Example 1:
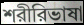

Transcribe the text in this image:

শরীরিভাষা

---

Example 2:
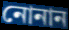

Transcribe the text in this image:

নোনান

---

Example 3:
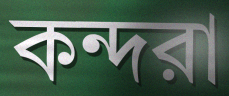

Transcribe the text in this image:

কন্দরা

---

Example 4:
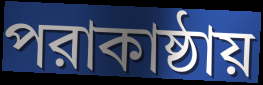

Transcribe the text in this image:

পরাকাষ্ঠায়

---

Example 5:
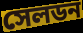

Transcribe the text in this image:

সেলডন